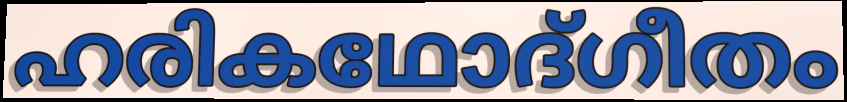
ഹരികഥോദ്ഗീതം